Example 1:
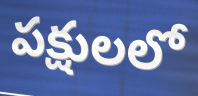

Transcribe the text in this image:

పక్షులలో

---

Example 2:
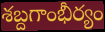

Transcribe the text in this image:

శబ్దగాంభీర్యం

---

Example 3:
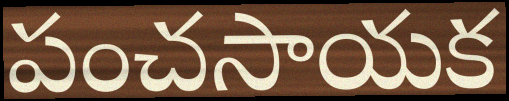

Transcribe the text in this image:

పంచసాయక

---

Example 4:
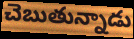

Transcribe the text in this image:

చెబుతున్నాడు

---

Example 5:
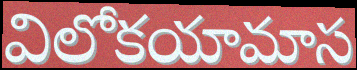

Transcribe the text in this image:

విలోకయామాస